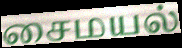
சைமயல்